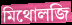
মিথোলজি